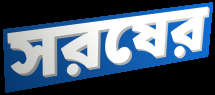
সরষের